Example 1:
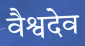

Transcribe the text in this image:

वैश्वदेव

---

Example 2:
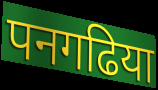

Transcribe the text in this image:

पनगढिया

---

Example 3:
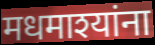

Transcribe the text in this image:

मधमाश्यांना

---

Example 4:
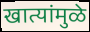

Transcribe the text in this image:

खात्यांमुळे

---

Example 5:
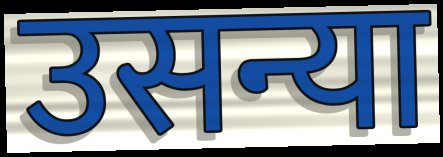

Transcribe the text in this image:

उसन्या